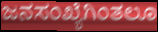
ಜನಸಂಖ್ಯೆಗಿಂತಲೂ